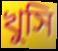
খুসি